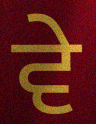
ਵੇ